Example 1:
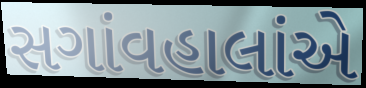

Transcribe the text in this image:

સગાંવહાલાંએ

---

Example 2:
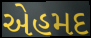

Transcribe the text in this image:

એહમદ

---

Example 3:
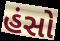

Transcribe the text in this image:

હંસો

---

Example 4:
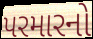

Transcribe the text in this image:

પરમારનો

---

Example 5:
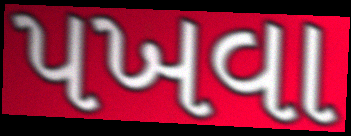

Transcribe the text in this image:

પખવા